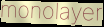
monolayer